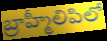
బ్రాహ్మీలిపిలో